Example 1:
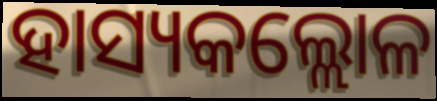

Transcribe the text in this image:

ହାସ୍ୟକଲ୍ଲୋଳ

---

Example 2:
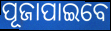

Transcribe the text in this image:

ପୂଜାପାଇବେ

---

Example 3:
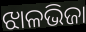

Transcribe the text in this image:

ଝାଳଭିଜା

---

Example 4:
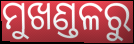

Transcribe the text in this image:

ମୁଖଣ୍ଡଳରୁ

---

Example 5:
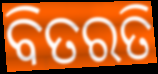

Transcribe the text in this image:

ବିତରତି